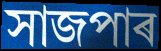
সাজপাৰ